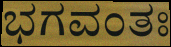
ಭಗವಂತಃ